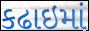
કઢાઇમાં